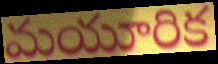
మయూరిక